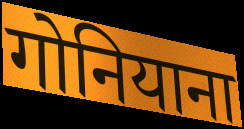
गोनियाना